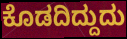
ಕೊಡದಿದ್ದುದು